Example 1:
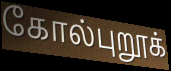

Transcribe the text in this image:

கோல்புறூக்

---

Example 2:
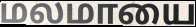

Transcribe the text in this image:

மலமாயை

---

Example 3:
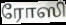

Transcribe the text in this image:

ரோஸி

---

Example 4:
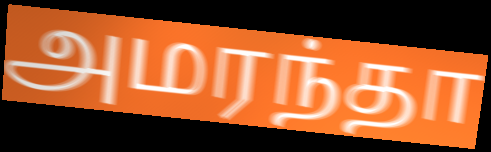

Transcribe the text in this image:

அமரந்தா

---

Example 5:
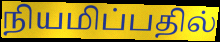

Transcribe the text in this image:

நியமிப்பதில்